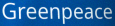
Greenpeace